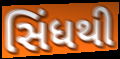
સિંધથી